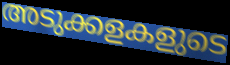
അടുക്കളകളുടെ